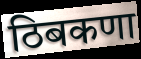
ठिबकणा